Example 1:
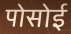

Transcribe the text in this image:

पोसोई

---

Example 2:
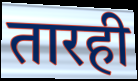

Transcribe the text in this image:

तारही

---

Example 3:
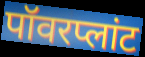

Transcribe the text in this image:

पॉवरप्लांट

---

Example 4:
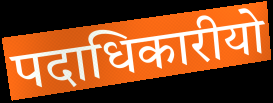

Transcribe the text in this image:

पदाधिकारीयो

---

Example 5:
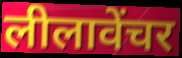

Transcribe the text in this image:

लीलावेंचर